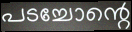
പടച്ചോന്റെ